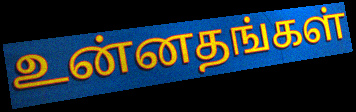
உன்னதங்கள்